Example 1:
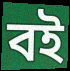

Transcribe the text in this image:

বই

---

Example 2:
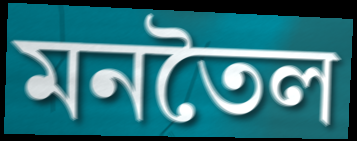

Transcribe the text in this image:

মনতৈল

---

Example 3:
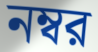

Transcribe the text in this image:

নম্বর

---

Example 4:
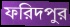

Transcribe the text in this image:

ফরিদপুর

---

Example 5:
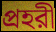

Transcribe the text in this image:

প্রহরী